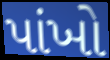
પાંખો